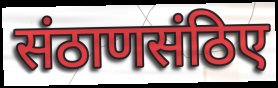
संठाणसंठिए